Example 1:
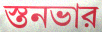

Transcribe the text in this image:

স্তনভার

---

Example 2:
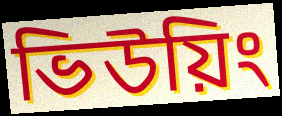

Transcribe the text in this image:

ভিউয়িং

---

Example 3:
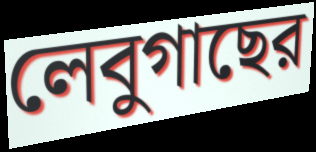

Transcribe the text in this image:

লেবুগাছের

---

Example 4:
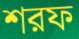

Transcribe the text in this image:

শরফ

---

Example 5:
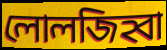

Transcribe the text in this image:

লোলজিহ্বা